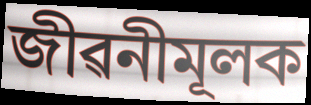
জীৱনীমূলক